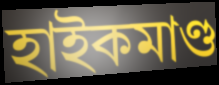
হাইকমাণ্ড